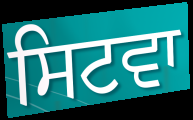
ਸਿਟਵਾ